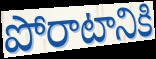
పోరాటానికి